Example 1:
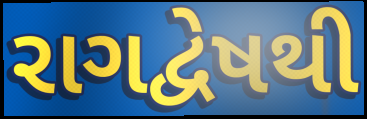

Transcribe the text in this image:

રાગદ્વેષથી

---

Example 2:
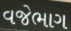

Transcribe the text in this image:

વજેભાગ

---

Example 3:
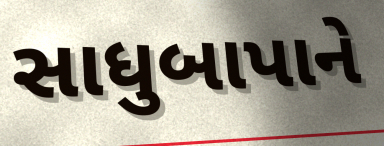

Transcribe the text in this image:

સાધુબાપાને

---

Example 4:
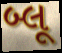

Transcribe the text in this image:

બ્લૂ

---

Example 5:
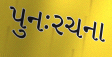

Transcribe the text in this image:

પુનઃરચના